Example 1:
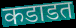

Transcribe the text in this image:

कडाडत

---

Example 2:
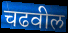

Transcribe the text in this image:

चढवील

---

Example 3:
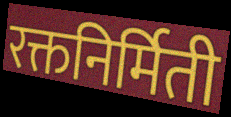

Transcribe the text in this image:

रक्तनिर्मिती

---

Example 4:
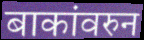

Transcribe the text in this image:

बाकांवरुन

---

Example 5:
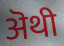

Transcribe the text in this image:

ऄथी